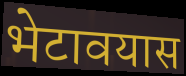
भेटावयास